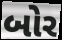
બોર